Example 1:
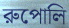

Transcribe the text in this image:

রুপোলি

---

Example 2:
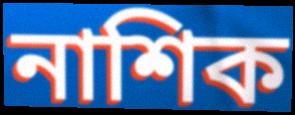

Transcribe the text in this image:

নাশিক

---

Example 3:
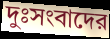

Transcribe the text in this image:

দুঃসংবাদের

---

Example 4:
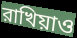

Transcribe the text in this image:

রাখিয়াও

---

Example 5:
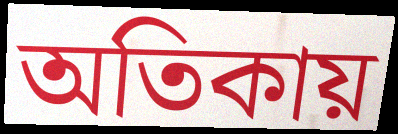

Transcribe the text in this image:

অতিকায়